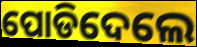
ପୋଡିଦେଲେ